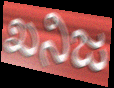
ಖನಿಜ